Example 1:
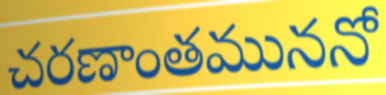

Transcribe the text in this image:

చరణాంతముననో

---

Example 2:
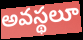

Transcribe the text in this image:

అవస్థలూ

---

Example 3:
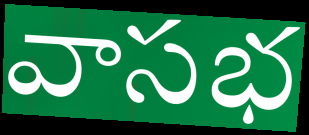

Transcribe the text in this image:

వాసభ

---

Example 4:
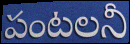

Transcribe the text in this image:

పంటలనీ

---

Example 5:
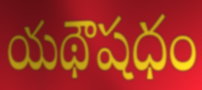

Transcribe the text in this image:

యథౌషధం